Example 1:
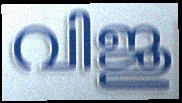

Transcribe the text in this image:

വിജു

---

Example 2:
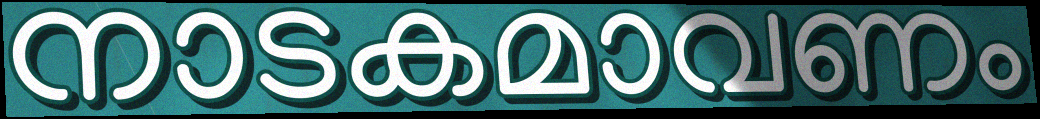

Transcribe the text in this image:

നാടകമാവണം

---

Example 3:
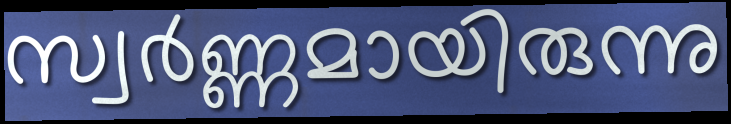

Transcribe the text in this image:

സ്വർണ്ണമായിരുന്നു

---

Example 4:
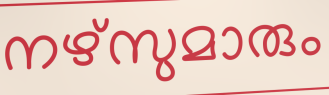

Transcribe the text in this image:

നഴ്സുമാരും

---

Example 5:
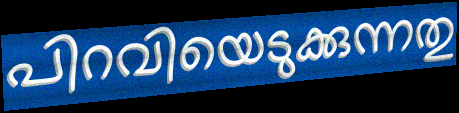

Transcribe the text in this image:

പിറവിയെടുക്കുന്നതു